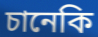
চানেকি